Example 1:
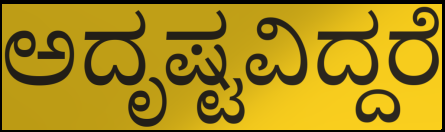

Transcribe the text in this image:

ಅದೃಷ್ಟವಿದ್ದರೆ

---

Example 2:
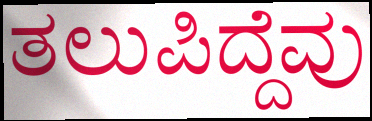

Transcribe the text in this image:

ತಲುಪಿದ್ದೆವು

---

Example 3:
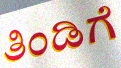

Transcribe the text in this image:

ತಿಂಡಿಗೆ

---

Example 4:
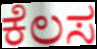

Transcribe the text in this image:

ಕೆಲಸ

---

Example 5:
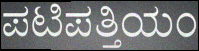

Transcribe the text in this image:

ಪಟಿಪತ್ತಿಯಂ